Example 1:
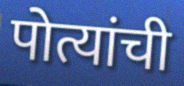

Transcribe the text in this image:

पोत्यांची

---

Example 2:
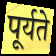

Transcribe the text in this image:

पूर्यते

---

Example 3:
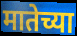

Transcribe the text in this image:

मातेच्या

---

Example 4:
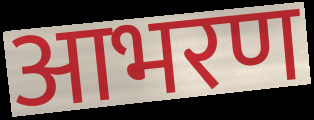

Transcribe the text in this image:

आभरण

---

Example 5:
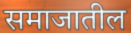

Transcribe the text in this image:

समाजातील